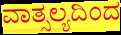
ವಾತ್ಸಲ್ಯದಿಂದ